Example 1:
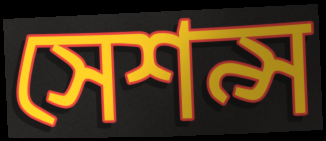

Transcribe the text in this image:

সেশন্স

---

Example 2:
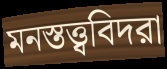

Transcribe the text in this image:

মনস্তত্ত্ববিদরা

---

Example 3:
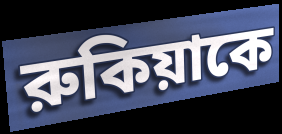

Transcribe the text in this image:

রুকিয়াকে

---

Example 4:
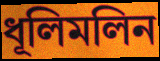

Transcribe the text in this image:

ধূলিমলিন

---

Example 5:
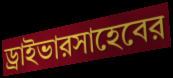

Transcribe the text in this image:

ড্রাইভারসাহেবের